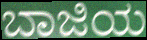
ಬಾಜಿಯ